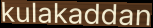
kulakaddan